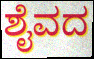
ಶೈವದ